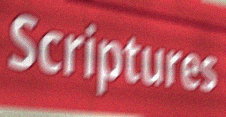
Scriptures